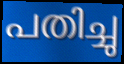
പതിച്ചു